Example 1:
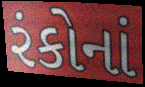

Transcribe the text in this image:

રંકોનાં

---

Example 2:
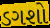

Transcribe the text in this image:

ડગશો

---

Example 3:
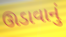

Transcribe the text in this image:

ઊડાવાનું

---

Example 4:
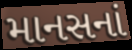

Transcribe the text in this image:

માનસનાં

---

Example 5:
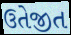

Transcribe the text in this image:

ઉતેજીત